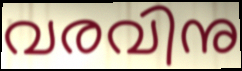
വരവിനു